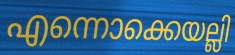
എന്നൊക്കെയല്ലി